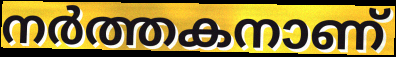
നർത്തകനാണ്